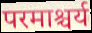
परमाश्चर्य